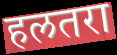
हलतरा